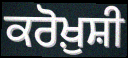
ਕਰੋਖ਼ੁਸ਼ੀ